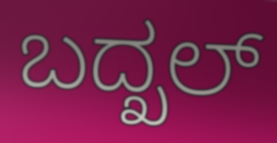
ಬದ್ಖಲ್